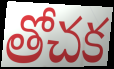
తోచక